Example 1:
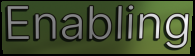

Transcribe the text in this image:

Enabling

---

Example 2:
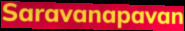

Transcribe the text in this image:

Saravanapavan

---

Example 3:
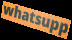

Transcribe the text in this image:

whatsupp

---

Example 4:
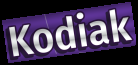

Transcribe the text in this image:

Kodiak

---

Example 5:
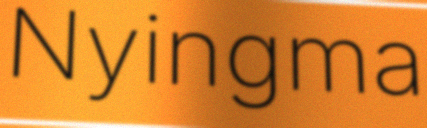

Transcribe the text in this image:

Nyingma